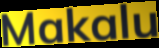
Makalu